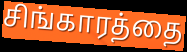
சிங்காரத்தை